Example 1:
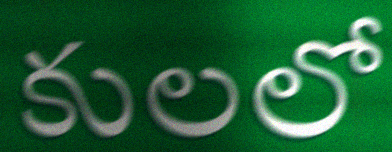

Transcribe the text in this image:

కులలో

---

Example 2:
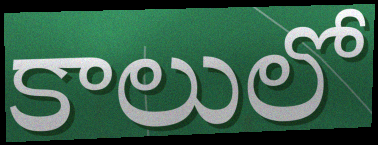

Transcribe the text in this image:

కాలులో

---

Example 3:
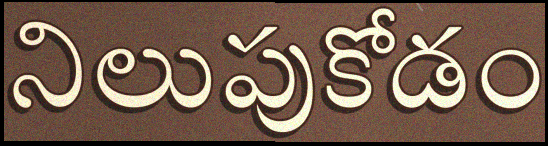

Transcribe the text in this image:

నిలుపుకోడం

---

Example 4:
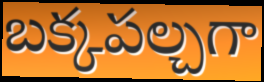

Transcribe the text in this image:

బక్కపల్చగా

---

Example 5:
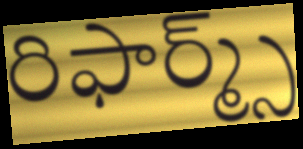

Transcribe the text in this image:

రిఫార్మ్స్